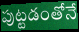
పుట్టడంతోనే